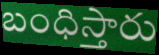
బంధిస్తారు